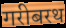
गरीबरथ